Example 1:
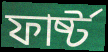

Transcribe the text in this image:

ফাৰ্ষ্ট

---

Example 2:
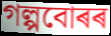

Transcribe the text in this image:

গল্পবোৰৰ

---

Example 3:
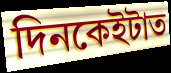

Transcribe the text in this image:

দিনকেইটাত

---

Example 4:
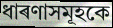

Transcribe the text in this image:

ধাৰণাসমূহকে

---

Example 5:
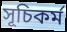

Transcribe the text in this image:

সূচিকৰ্ম